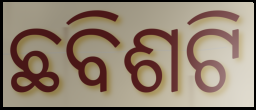
ଛବିଶଟି